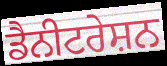
ਡੈਨੀਟਰੇਸ਼ਨ